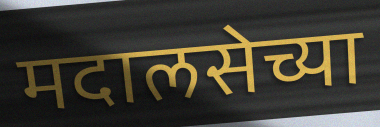
मदालसेच्या